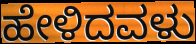
ಹೇಳಿದವಳು